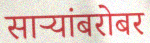
साऱ्यांबरोबर